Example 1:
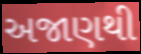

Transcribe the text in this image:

અજાણથી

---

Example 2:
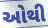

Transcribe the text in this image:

ઓથી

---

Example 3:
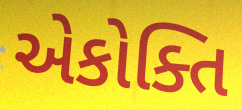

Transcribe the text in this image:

એકોક્તિ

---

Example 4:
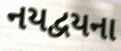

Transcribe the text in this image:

નયદ્વયના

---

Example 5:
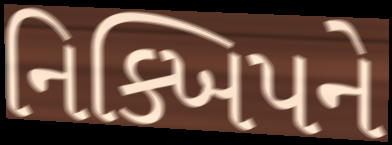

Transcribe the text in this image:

નિક્ખિપને